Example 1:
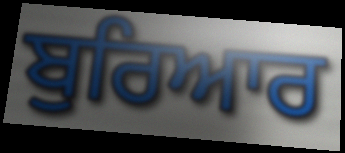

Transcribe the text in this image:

ਬੁਰਿਆਰ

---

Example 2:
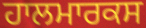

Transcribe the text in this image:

ਹਾਲਮਾਰਕਸ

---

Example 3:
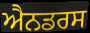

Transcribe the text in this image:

ਐਨਡਰਸ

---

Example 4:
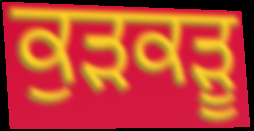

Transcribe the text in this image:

ਕੁੜਕੜੂ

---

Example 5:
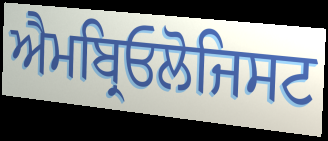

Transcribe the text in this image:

ਐਮਬ੍ਰਿਓਲੋਜਿਸਟ